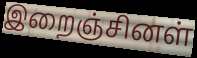
இறைஞ்சினள்